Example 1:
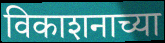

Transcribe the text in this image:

विकाशनाच्या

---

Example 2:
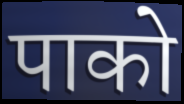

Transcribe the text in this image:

पाको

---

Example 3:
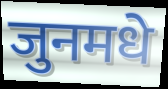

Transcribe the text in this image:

जुनमधे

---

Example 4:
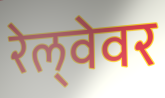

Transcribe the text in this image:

रेल्वेवर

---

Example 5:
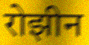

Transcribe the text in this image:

रोझीन